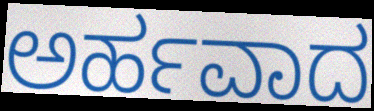
ಅರ್ಹವಾದ